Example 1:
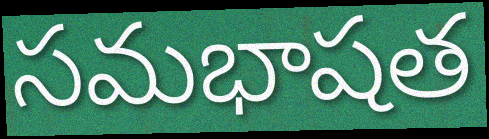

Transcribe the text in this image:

సమభాషత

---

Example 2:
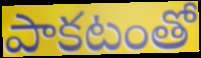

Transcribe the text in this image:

పాకటంతో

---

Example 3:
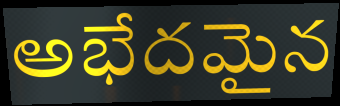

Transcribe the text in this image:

అభేదమైన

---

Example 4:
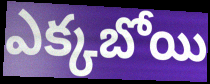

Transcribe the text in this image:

ఎక్కబోయి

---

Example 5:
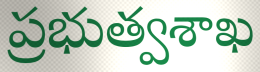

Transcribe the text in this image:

ప్రభుత్వశాఖ